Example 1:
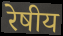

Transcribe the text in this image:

रेषीय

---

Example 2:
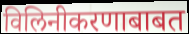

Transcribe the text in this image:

विलिनीकरणाबाबत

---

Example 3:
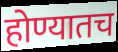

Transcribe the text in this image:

होण्यातच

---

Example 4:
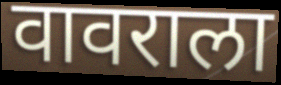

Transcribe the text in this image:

वावराला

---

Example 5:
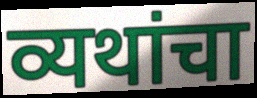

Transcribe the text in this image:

व्यथांचा